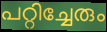
പറ്റിച്ചേരും